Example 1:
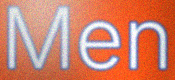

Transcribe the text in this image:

Men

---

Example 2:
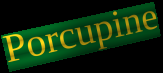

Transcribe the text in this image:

Porcupine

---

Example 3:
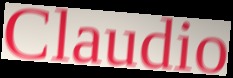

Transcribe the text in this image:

Claudio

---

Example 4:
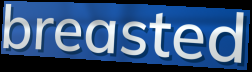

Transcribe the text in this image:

breasted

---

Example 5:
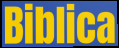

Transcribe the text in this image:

Biblica